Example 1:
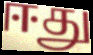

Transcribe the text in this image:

ஈது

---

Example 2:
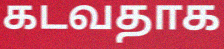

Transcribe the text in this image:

கடவதாக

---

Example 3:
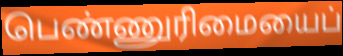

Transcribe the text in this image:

பெண்ணுரிமையைப்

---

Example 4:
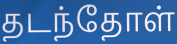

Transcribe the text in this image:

தடந்தோள்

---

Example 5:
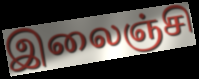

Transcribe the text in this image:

இலைஞ்சி